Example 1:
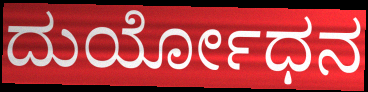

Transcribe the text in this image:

ದುರ್ಯೋಧನ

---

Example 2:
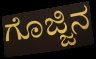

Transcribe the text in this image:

ಗೊಜ್ಜಿನ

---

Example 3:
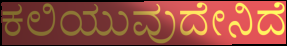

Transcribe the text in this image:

ಕಲಿಯುವುದೇನಿದೆ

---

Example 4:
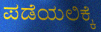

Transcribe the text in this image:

ಪಡೆಯಲಿಕ್ಕೆ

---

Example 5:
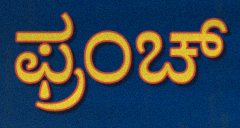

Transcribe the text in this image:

ಫ್ರಂಚ್